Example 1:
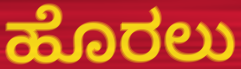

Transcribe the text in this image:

ಹೊರಲು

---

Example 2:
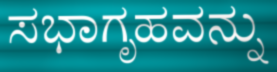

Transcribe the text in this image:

ಸಭಾಗೃಹವನ್ನು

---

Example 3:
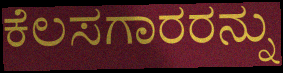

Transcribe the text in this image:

ಕೆಲಸಗಾರರನ್ನು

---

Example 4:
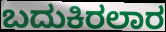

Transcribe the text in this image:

ಬದುಕಿರಲಾರ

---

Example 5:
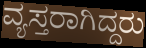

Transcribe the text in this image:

ವ್ಯಸ್ತರಾಗಿದ್ದರು